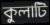
কুলাটি